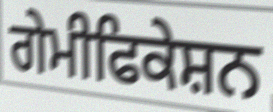
ਗੇਮੀਫਿਕੇਸ਼ਨ